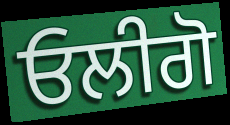
ਓਲੀਗੋ